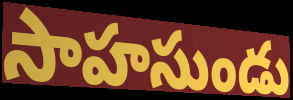
సాహసుండు